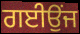
ਗਈਉਂਜ